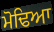
ਮੋਢਿਆ